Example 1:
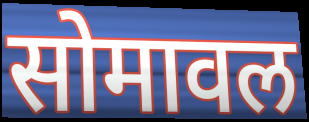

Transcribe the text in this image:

सोमावल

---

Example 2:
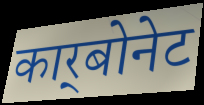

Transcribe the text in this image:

कार्बोनेट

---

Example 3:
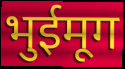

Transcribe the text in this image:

भुईमूग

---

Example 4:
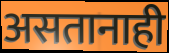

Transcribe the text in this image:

असतानाही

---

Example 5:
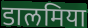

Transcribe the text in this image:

डालमिया